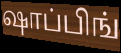
ஷாப்பிங்